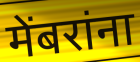
मेंबरांना